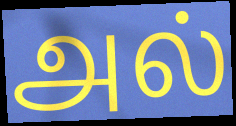
அல்